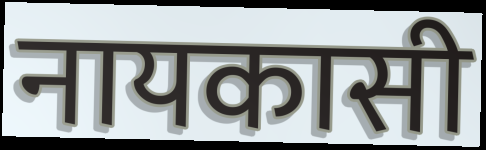
नायकासी